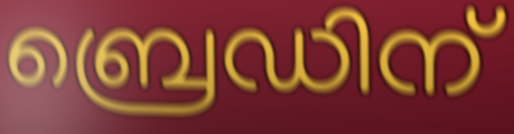
ബ്രെഡിന്